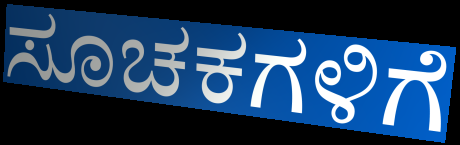
ಸೂಚಕಗಳಿಗೆ